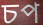
চপ